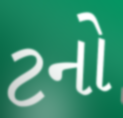
ટનો